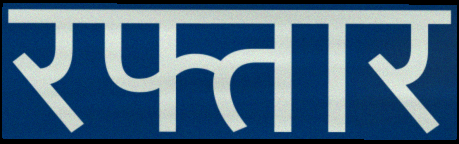
रफ्तार